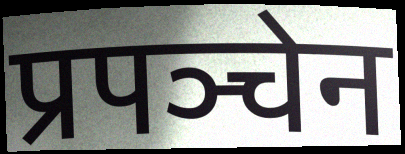
प्रपञ्चेन